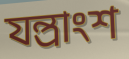
যন্ত্রাংশ